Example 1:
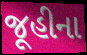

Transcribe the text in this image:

જૂહીના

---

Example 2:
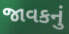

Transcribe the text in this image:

જાવકનું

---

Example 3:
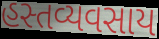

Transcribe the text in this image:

હસ્તવ્યવસાય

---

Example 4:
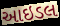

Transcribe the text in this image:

આઇડલ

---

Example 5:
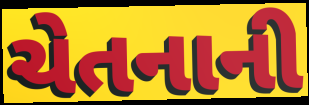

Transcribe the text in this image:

ચેતનાની